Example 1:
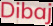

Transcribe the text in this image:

Dibaj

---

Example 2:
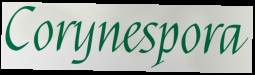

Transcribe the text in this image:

Corynespora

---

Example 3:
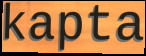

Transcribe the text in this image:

kapta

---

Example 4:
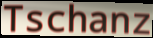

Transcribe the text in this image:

Tschanz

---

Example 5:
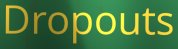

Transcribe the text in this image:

Dropouts